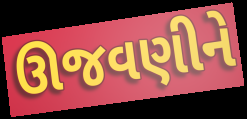
ઊજવણીને